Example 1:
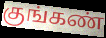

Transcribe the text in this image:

குங்கண்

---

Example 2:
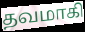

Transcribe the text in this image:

தவமாகி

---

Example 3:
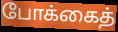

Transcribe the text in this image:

போக்கைத்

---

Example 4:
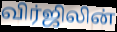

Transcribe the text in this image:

விர்ஜிலின்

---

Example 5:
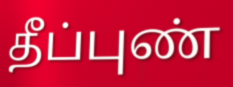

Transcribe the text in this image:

தீப்புண்